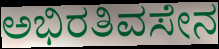
ಅಭಿರತಿವಸೇನ